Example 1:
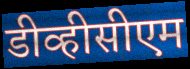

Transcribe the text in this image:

डीव्हीसीएम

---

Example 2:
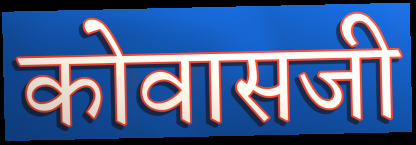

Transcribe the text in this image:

कोवासजी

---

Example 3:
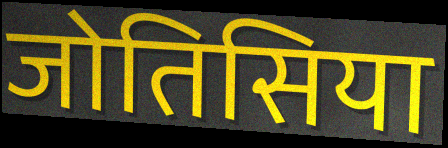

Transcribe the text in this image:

जोतिसिया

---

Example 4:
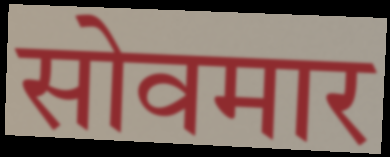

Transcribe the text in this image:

सोवमार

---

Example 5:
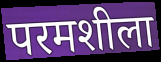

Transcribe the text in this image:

परमशीला